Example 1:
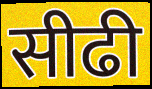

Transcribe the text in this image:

सीढी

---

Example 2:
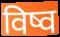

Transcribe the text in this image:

विष्व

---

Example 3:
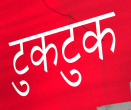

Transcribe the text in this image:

टुकटुक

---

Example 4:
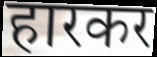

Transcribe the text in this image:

हारकर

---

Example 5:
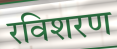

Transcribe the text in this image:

रविशरण